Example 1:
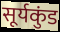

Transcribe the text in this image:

सूर्यकुंड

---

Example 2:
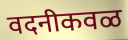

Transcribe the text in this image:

वदनीकवळ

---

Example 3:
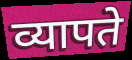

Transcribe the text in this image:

व्यापते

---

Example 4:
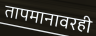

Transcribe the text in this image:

तापमानावरही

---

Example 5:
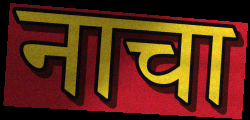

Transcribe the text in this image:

नाचा